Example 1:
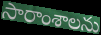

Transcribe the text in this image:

సారాంశాలను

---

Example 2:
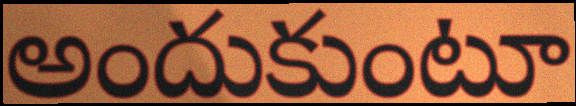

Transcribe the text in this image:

అందుకుంటూ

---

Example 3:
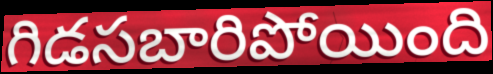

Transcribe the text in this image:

గిడసబారిపోయింది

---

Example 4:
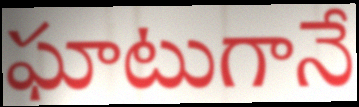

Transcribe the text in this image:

ఘాటుగానే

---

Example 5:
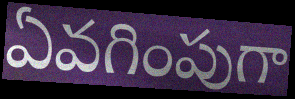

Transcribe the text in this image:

ఏవగింపుగా